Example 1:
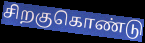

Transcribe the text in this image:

சிறகுகொண்டு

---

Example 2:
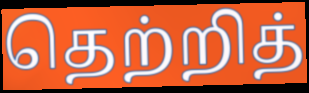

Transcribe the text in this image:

தெற்றித்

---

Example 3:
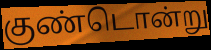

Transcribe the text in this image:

குண்டொன்று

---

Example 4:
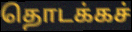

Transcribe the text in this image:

தொடக்கச்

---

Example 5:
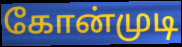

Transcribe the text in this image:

கோன்முடி